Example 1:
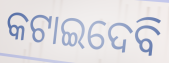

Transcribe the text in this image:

କଟାଇଦେବି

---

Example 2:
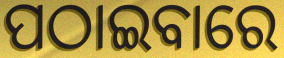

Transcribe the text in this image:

ପଠାଇବାରେ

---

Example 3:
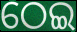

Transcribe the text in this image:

ଠେଇ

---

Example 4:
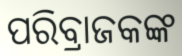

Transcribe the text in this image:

ପରିବ୍ରାଜକଙ୍କ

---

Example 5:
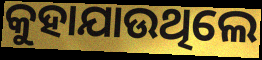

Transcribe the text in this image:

କୁହାଯାଉଥିଲେ